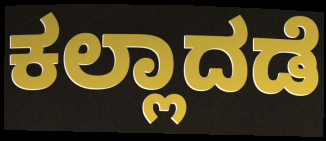
ಕಲ್ಲಾದಡೆ